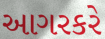
આગરકરે